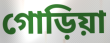
গোড়িয়া